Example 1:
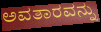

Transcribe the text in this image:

ಅವತಾರವನ್ನು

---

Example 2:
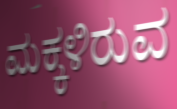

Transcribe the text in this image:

ಮಕ್ಕಳಿರುವ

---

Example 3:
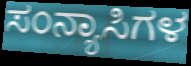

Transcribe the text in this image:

ಸಂನ್ಯಾಸಿಗಳ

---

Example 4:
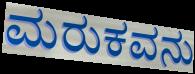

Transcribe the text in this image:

ಮರುಕವನು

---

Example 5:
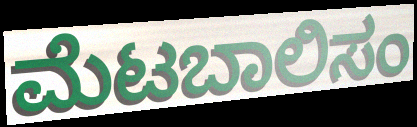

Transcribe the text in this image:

ಮೆಟಬಾಲಿಸಂ